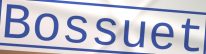
Bossuet